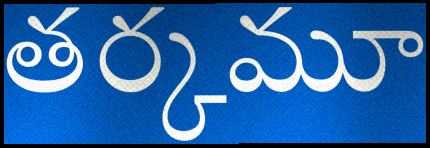
తర్కమూ